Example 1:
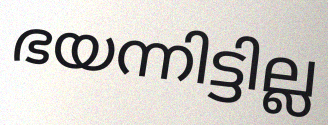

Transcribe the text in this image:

ഭയന്നിട്ടില്ല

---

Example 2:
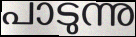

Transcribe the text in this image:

പാടുന്നു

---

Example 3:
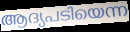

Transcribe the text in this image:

ആദ്യപടിയെന്ന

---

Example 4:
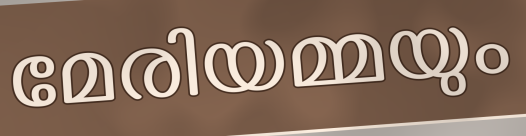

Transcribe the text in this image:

മേരിയമ്മയും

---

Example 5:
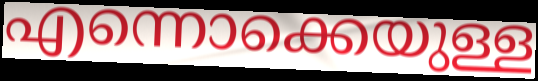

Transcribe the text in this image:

എന്നൊക്കെയുള്ള